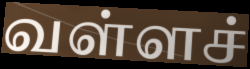
வள்ளச்